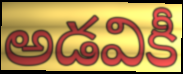
అడవికీ